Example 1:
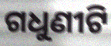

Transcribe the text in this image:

ଗଧୁଣୀଟି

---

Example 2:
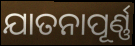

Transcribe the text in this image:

ଯାତନାପୂର୍ଣ୍ଣ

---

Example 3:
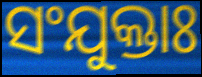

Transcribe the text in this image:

ସଂଯୁକ୍ତାଃ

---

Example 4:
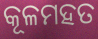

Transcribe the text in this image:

କୂଳମହତ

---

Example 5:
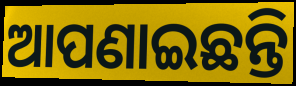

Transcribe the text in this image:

ଆପଣାଇଛନ୍ତି